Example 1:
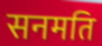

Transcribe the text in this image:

सनमति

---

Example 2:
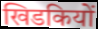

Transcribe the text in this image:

खिडकियों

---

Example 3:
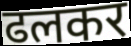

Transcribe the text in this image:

ढलकर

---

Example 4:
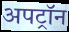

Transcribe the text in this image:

अपट्रॉन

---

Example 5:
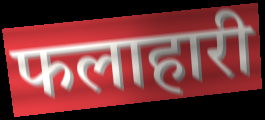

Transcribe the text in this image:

फलाहारी